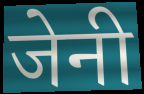
जेनी